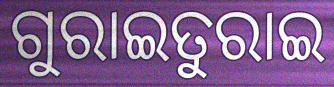
ଗୁରାଇତୁରାଇ